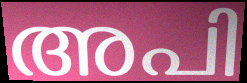
അപി